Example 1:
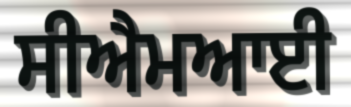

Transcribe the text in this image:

ਸੀਐਮਆਈ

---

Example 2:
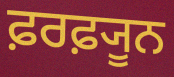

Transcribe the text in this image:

ਫ਼ਰਫ਼੍ਯੂਨ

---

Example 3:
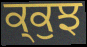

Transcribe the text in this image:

ਕ੍ਕੁਝ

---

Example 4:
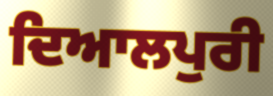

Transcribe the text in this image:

ਦਿਆਲਪੁਰੀ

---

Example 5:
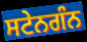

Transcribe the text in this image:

ਸਟੇਨਗੰਨ